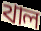
থাল